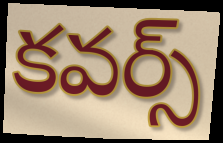
కవర్స్